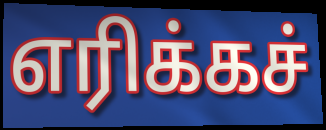
எரிக்கச்